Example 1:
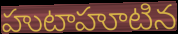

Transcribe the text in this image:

హుటాహూటిన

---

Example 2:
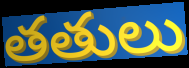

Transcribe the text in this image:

తతులు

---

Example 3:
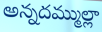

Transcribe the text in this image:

అన్నదమ్ముల్లా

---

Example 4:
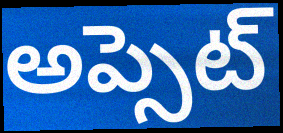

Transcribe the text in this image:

అప్సెట్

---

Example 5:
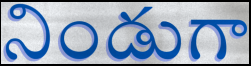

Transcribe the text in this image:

నిండుగా